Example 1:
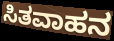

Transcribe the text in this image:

ಸಿತವಾಹನ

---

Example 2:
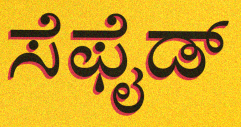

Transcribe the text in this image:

ಸೆಫೈಡ್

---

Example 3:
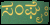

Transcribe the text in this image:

ಸಂಘೈಃ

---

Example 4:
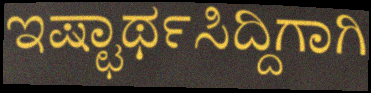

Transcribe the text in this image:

ಇಷ್ಟಾರ್ಥಸಿದ್ದಿಗಾಗಿ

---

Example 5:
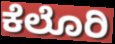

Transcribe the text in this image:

ಕೆಲೊರಿ